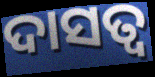
ଦାସତ୍ବ